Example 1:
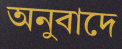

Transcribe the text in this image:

অনুবাদে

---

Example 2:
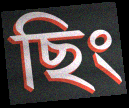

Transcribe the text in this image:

ছিং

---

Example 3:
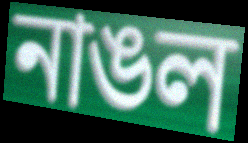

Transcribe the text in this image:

নাঙল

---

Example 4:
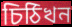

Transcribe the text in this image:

চিঠিখন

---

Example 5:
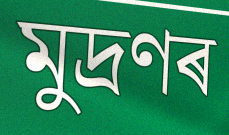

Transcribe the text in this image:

মুদ্ৰণৰ